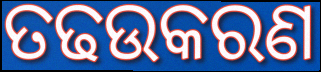
ତଢଉକରଣ